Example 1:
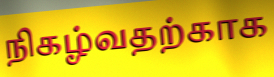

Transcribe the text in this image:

நிகழ்வதற்காக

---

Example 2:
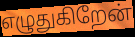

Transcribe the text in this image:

எழுதுகிறேன்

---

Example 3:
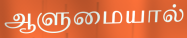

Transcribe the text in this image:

ஆளுமையால்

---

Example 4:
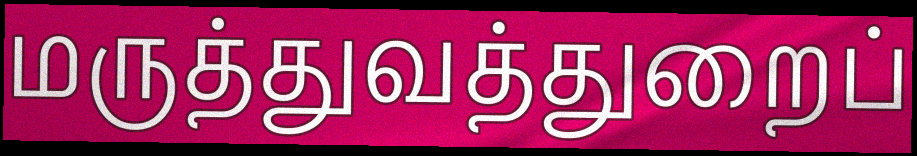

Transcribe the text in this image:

மருத்துவத்துறைப்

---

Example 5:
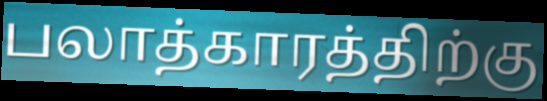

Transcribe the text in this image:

பலாத்காரத்திற்கு